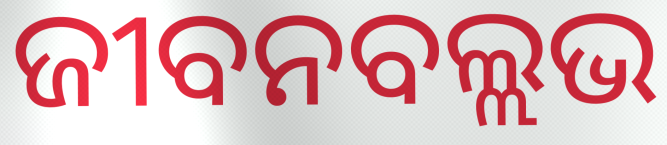
ଜୀବନବଲ୍ଲଭ